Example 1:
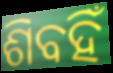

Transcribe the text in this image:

ଶିବହିଁ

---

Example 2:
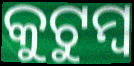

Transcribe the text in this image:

କୁଟୁମ୍ଵ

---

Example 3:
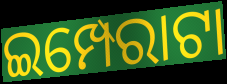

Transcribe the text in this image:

ଇମ୍ପେରାଟା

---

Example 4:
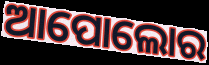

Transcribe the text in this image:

ଆପୋଲୋର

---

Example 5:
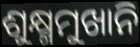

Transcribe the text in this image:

ଶୁକ୍ଷ୍ମମୁଖାନି